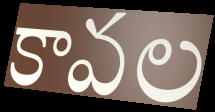
కావల